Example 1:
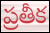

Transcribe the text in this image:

ప్రతీక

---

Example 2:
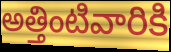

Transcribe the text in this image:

అత్తింటివారికి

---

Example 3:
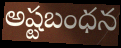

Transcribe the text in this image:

అష్టబంధన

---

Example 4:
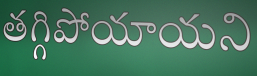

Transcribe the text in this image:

తగ్గిపోయాయని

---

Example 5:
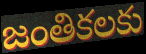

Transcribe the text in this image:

జంతికలకు